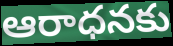
ఆరాధనకు